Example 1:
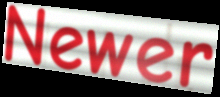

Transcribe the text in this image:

Newer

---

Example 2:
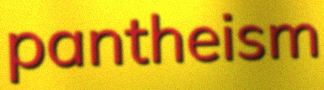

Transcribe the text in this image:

pantheism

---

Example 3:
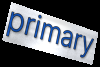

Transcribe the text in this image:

primary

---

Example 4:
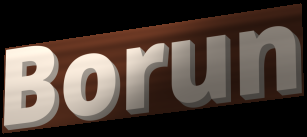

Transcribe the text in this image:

Borun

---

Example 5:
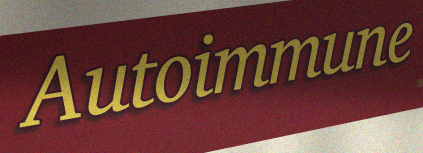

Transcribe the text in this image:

Autoimmune